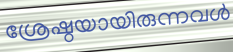
ശ്രേഷ്ഠയായിരുന്നവൾ